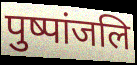
पुष्पांजलि